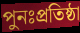
পুনঃপ্রতিষ্ঠা